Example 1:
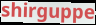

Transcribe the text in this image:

shirguppe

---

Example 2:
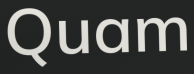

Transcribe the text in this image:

Quam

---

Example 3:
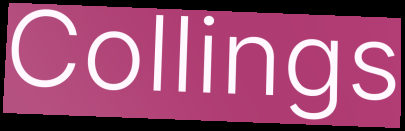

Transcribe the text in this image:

Collings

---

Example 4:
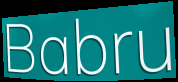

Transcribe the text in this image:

Babru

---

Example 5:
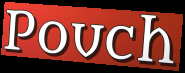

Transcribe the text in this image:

Pouch